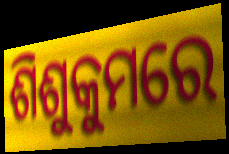
ଶିଶୁକୁମରେ